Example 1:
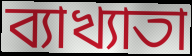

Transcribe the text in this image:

ব্যাখ্যাতা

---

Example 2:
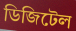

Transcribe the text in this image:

ডিজিটেল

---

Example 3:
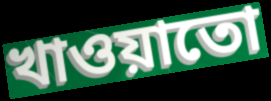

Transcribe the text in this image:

খাওয়াতো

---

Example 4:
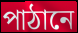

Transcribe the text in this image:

পাঠানে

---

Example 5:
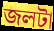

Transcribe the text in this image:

জলটা